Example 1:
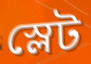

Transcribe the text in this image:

স্লেট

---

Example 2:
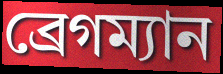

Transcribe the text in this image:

ব্রেগম্যান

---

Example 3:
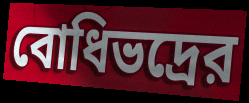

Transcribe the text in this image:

বোধিভদ্রের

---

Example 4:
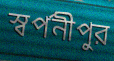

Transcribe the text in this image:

স্বর্পনীপুর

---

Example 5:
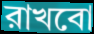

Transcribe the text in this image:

রাখবো